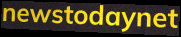
newstodaynet